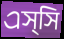
এস্‌সি